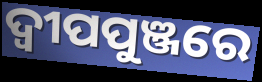
ଦ୍ୱୀପପୁଞ୍ଜରେ